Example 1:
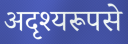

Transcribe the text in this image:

अदृश्यरूपसे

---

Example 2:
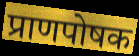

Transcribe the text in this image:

प्राणपोषक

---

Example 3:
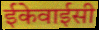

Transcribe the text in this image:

ईकेवाईसी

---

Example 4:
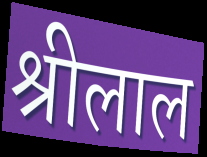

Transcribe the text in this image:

श्रीलाल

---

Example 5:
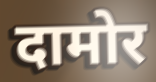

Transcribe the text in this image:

दामोर